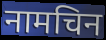
नामचिन